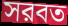
সরবত